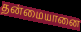
தன்மையானை